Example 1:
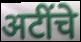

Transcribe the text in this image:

अटींचे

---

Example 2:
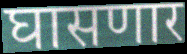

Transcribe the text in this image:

घासणार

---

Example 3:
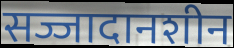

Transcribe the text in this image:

सज्जादानशीन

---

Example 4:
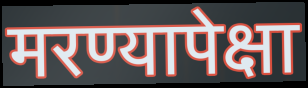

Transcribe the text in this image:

मरण्यापेक्षा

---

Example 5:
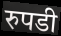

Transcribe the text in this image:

रुपडी